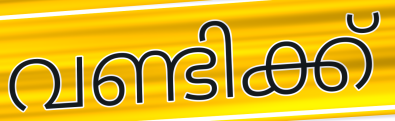
വണ്ടിക്ക്